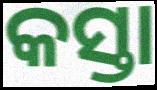
କସ୍ତା